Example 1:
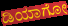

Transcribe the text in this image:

ಡಿಯಾಗೋ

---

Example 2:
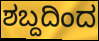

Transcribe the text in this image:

ಶಬ್ದದಿಂದ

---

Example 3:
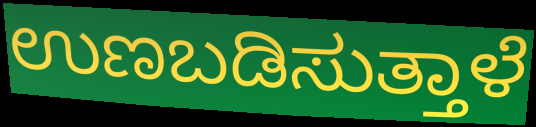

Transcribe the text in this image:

ಉಣಬಡಿಸುತ್ತಾಳೆ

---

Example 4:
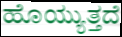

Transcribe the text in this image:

ಹೊಯ್ಯುತ್ತದೆ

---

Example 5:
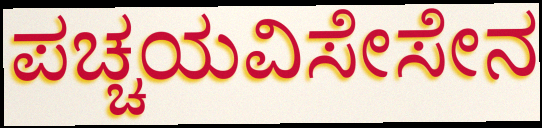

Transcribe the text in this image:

ಪಚ್ಚಯವಿಸೇಸೇನ